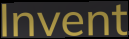
Invent